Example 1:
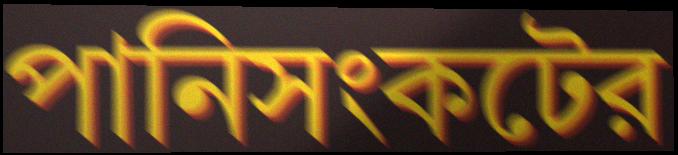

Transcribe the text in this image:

পানিসংকটের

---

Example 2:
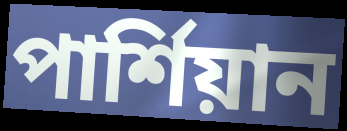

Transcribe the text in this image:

পার্শিয়ান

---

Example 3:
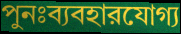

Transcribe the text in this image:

পুনঃব্যবহারযোগ্য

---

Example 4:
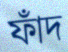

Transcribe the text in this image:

ফাঁদ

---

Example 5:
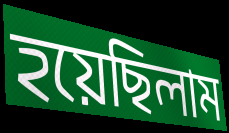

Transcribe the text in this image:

হয়েছিলাম